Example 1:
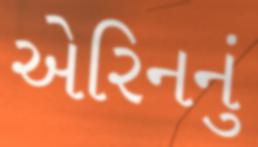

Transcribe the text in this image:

એરિનનું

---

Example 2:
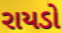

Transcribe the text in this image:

રાયડો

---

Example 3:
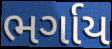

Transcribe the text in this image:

ભર્ગાય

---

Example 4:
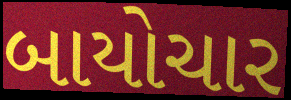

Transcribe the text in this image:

બાયોચાર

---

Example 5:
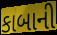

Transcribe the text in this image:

કાબાની